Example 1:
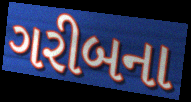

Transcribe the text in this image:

ગરીબના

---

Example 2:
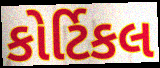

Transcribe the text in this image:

કોર્ટિકલ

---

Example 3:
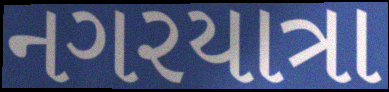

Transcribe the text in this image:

નગરયાત્રા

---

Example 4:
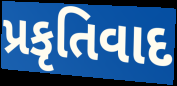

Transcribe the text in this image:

પ્રકૃતિવાદ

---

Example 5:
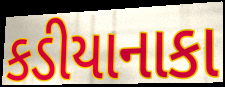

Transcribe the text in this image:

કડીયાનાકા